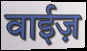
वाईज़